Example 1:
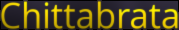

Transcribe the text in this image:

Chittabrata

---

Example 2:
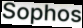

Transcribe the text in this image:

Sophos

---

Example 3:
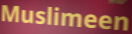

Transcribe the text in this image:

Muslimeen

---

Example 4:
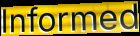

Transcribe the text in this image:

Informed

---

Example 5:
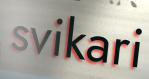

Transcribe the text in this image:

svikari